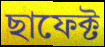
ছাফেক্ট